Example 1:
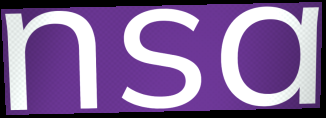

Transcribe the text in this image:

nsa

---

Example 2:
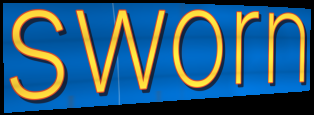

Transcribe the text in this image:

sworn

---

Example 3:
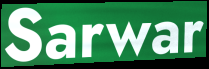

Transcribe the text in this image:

Sarwar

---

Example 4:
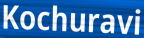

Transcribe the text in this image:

Kochuravi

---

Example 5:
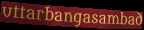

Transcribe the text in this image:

uttarbangasambad